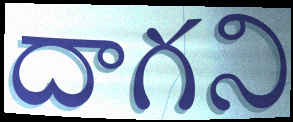
దాగని